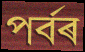
পৰ্বৰ